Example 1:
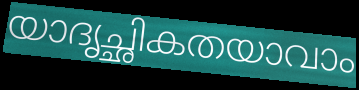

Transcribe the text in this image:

യാദൃച്ഛികതയാവാം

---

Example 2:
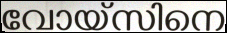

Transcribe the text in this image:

വോയ്സിനെ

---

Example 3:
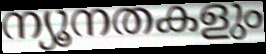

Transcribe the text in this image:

ന്യൂനതകളും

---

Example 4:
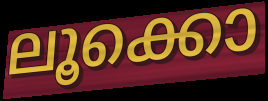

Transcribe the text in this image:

ലൂക്കൊ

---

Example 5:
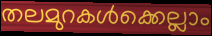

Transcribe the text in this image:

തലമുറകൾക്കെല്ലാം